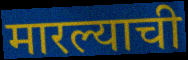
मारल्याची